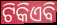
ଟିକିଏବି